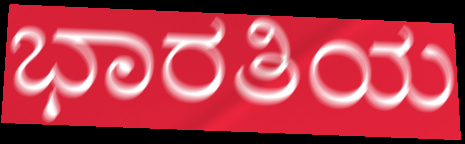
ಭಾರತಿಯ